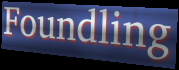
Foundling